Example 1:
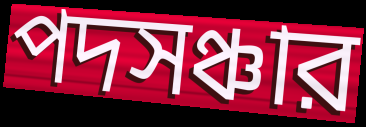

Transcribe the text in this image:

পদসঞ্চার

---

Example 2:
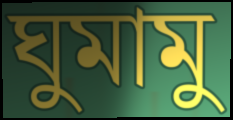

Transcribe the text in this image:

ঘুমামু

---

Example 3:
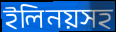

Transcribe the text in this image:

ইলিনয়সহ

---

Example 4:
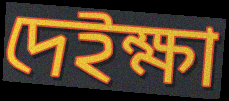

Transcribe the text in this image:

দেইক্ষা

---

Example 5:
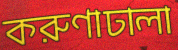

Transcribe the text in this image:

করুণাঢালা